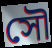
সৌ